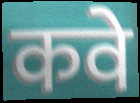
कवे